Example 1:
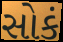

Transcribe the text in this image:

સોકં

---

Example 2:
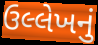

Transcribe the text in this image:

ઉલ્લેખનું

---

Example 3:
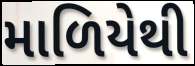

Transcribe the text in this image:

માળિયેથી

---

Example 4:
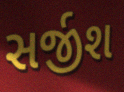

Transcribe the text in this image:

સર્જીશ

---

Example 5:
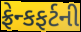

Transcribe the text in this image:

ફ્રેન્કફર્ટની